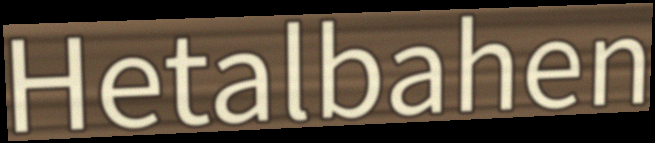
Hetalbahen